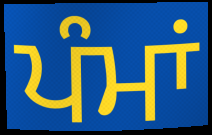
ਪੰਮਾਂ